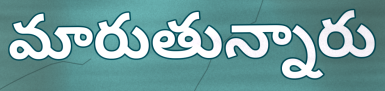
మారుతున్నారు